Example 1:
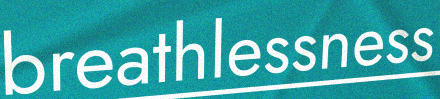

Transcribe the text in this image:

breathlessness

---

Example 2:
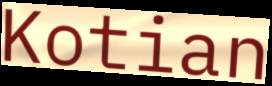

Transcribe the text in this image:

Kotian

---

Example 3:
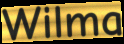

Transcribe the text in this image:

Wilma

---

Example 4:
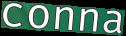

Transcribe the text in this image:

conna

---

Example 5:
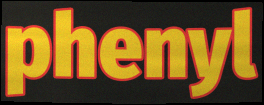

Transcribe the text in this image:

phenyl